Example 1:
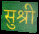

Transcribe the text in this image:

सुश्री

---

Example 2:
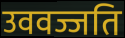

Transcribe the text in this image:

उववज्जति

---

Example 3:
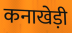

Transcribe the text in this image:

कनाखेड़ी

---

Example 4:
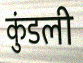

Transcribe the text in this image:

कुंडली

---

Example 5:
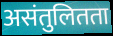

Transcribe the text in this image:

असंतुलितता